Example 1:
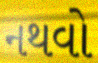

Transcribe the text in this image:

નથવો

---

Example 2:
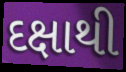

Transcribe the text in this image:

દક્ષાથી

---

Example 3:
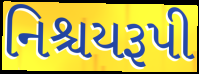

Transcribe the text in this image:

નિશ્ચયરૂપી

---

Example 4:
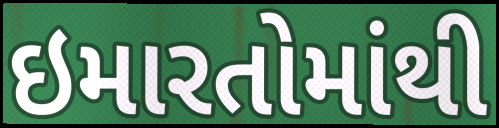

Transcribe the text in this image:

ઇમારતોમાંથી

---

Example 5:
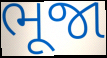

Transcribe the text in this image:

ભૂજા